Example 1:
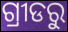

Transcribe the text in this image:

ଗ୍ରୀଡରୁ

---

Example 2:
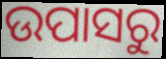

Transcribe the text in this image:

ଉପାସରୁ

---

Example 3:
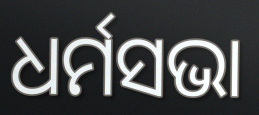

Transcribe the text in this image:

ଧର୍ମସଭା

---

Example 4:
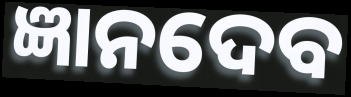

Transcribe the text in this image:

ଜ୍ଞାନଦେବ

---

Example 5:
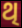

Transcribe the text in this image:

ଥି